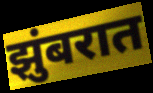
झुंबरात